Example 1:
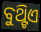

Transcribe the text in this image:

ବୁଥ୍ଟିଏ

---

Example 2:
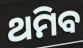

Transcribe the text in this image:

ଥମିବ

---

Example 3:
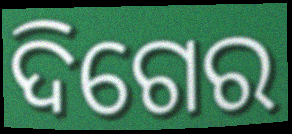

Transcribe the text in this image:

ଦିଗେର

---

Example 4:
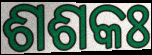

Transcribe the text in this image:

ଶଶକଃ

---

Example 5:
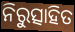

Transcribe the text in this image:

ନିରୁତ୍ସାହିତ